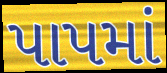
પાપમાં